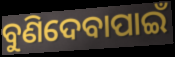
ବୁଣିଦେବାପାଇଁ